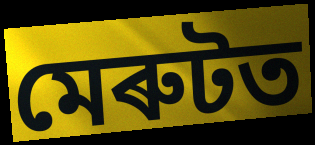
মেৰুটত